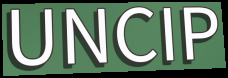
UNCIP